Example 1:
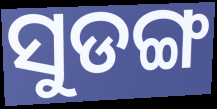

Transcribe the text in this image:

ସୁଡଙ୍ଗ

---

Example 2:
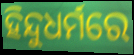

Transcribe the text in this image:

ହିନ୍ଦୁଧର୍ମରେ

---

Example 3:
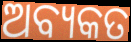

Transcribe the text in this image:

ଅବ୍ୟକତ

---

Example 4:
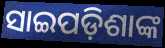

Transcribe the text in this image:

ସାଇପଡ଼ିଶାଙ୍କ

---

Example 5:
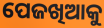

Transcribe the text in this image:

ପେଜଖିଆକୁ